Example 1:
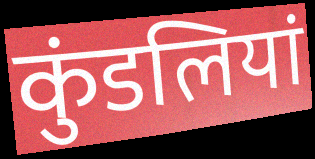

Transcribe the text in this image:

कुंडलियां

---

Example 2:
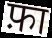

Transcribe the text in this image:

फ़ा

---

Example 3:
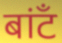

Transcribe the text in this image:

बांँट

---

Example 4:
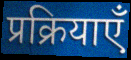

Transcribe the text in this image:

प्रक्रियाएँ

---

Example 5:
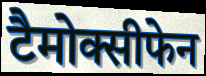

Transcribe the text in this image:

टैमोक्सीफेन